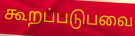
கூறப்படுபவை